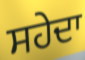
ਸਹੇਦਾ